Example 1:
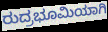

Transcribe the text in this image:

ರುದ್ರಭೂಮಿಯಾಗಿ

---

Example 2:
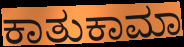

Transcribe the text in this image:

ಕಾತುಕಾಮಾ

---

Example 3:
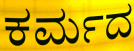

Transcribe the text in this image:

ಕರ್ಮದ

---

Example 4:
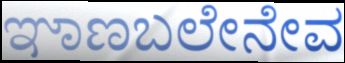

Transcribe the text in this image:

ಞಾಣಬಲೇನೇವ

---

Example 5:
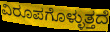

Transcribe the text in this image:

ವಿರೂಪಗೊಳ್ಳುತ್ತದೆ